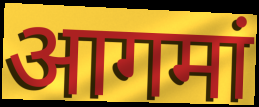
आगमां